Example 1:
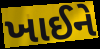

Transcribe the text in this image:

ખાઈને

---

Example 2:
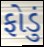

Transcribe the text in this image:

ફોડું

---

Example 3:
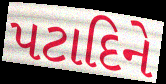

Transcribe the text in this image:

પટાદિને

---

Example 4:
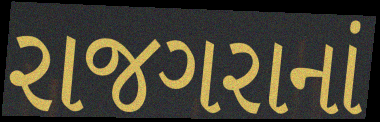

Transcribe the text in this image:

રાજગરાનાં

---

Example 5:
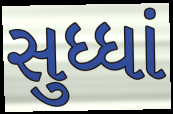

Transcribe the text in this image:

સુધ્ધાં